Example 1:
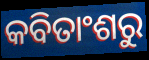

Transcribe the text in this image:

କବିତାଂଶରୁ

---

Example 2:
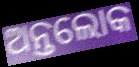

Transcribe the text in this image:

ଅନ୍ତଲୋକ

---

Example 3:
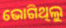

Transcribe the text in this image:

ଭୋଗିଥିଲୁ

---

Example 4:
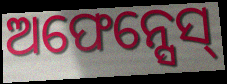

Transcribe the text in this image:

ଅଫେନ୍ସେସ୍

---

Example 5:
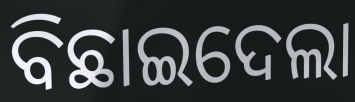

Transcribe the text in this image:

ବିଛାଇଦେଲା